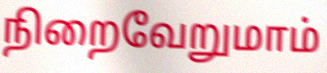
நிறைவேறுமாம்